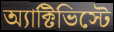
অ্যাক্টিভিস্টে